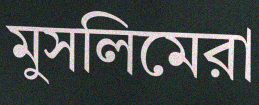
মুসলিমেরা